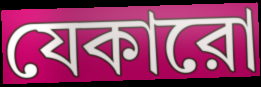
যেকারো